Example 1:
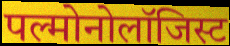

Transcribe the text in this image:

पल्मोनोलॉजिस्ट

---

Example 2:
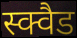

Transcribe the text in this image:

स्क्वैड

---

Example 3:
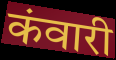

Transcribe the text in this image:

कंवारी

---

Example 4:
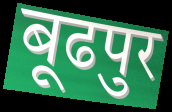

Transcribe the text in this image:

बूढपुर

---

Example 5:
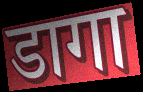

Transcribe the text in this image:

डागा